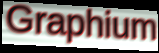
Graphium